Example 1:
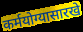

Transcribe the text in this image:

कर्मयोग्यासारखे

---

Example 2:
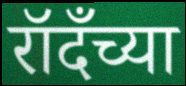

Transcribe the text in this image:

रॉदँच्या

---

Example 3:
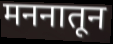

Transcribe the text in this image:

मननातून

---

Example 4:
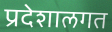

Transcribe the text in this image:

प्रदेशालगत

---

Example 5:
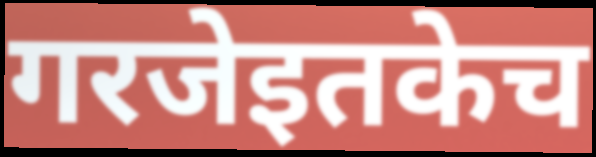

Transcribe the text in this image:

गरजेइतकेच